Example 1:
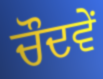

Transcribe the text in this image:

ਚੌਦਵੇਂ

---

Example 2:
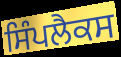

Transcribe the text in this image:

ਸਿੰਪਲੈਕਸ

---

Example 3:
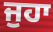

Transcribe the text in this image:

ਜੁਹਾ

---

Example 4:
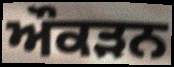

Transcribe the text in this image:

ਔਕੜਨ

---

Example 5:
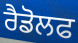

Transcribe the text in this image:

ਰੈਡੋਲਫ